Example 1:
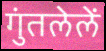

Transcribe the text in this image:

गुंतलेलें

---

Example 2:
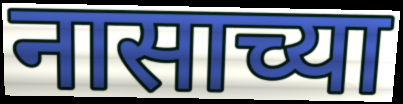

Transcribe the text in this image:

नासाच्या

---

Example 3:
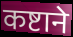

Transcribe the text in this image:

कष्टाने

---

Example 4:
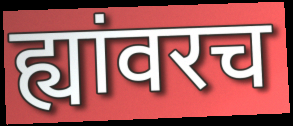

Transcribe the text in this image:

ह्यांवरच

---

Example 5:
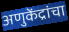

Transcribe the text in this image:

अणुकेंद्रांचा